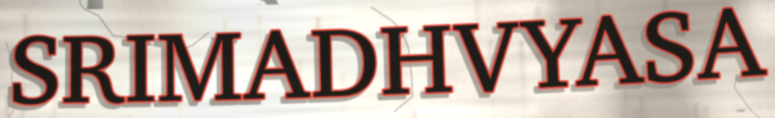
SRIMADHVYASA